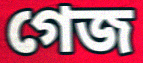
গেজ